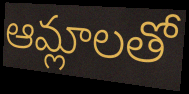
ఆమ్లాలతో